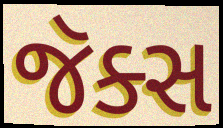
જૅક્સ